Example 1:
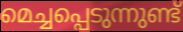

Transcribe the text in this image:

മെച്ചപ്പെടുന്നുണ്ട്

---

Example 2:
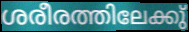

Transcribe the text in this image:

ശരീരത്തിലേക്കു്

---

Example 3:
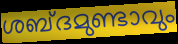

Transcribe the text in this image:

ശബ്ദമുണ്ടാവും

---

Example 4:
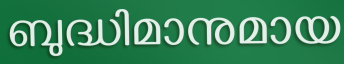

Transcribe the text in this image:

ബുദ്ധിമാനുമായ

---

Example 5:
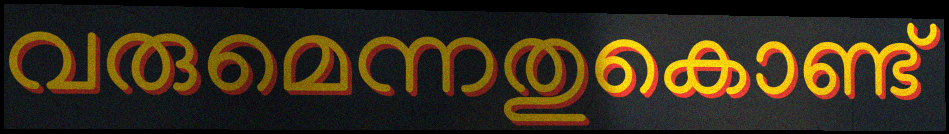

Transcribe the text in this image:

വരുമെന്നതുകൊണ്ട്